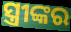
ସ୍ତ୍ରୀଙ୍କର